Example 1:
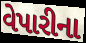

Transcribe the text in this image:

વેપારીના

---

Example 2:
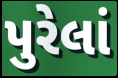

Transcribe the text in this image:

પુરેલાં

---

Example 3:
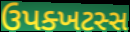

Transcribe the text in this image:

ઉપક્ખટસ્સ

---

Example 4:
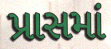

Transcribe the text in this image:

પ્રાસમાં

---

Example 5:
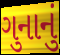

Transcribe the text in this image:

ગુનાનું